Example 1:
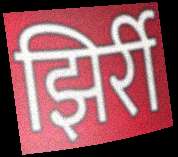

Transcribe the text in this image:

झिर्री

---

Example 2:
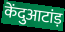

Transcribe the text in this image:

केंदुआटांड़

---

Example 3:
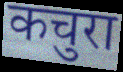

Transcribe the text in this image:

कचुरा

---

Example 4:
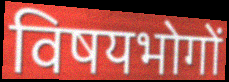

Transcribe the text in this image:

विषयभोगों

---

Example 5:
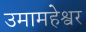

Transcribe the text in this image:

उमामहेश्वर